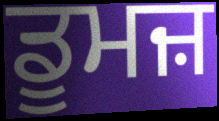
ਡੂਮਜ਼